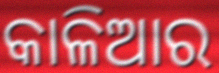
କାଳିଆର